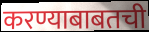
करण्याबाबतची